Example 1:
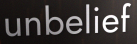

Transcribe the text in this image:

unbelief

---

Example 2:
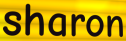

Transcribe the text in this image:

sharon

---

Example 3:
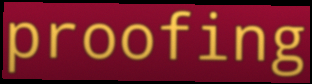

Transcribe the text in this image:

proofing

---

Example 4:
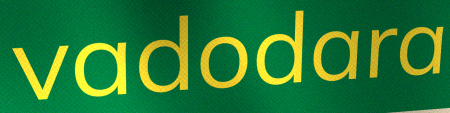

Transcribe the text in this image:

vadodara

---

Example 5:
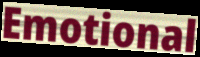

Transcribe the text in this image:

Emotional